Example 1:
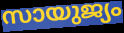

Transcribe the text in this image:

സായുജ്യം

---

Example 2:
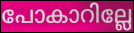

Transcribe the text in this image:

പോകാറില്ലേ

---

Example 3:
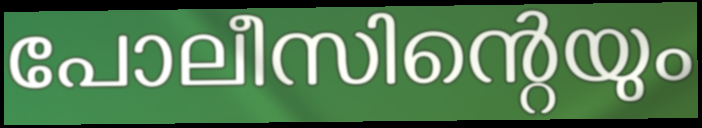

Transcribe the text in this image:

പോലീസിന്റെയും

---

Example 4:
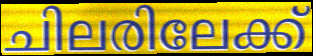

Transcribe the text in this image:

ചിലരിലേക്ക്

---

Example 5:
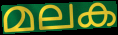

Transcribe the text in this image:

മലക